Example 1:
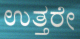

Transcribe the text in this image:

ಉತ್ತರೇ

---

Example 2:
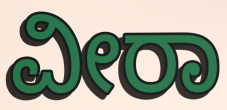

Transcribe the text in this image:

ವೀರಾ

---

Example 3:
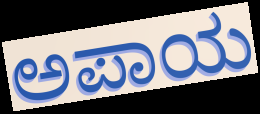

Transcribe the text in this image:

ಅಪಾಯ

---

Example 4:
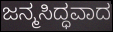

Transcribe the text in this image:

ಜನ್ಮಸಿದ್ಧವಾದ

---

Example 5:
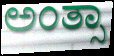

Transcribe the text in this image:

ಅಂತ್ಸಾ